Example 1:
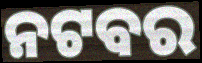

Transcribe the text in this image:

ନଟବର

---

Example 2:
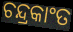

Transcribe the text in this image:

ଚନ୍ଦ୍ରକାଂତ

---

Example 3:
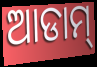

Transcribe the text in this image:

ଆଡାମ୍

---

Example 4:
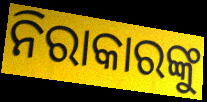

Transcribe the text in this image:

ନିରାକାରଙ୍କୁ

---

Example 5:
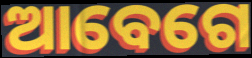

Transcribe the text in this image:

ଆବେଗେ